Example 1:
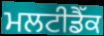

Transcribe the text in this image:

ਮਲਟੀਡੈੱਕ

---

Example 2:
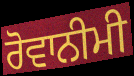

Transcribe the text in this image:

ਰੋਵਾਨੀਮੀ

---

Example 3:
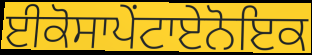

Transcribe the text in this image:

ਈਕੋਸਾਪੇਂਟਾਏਨੋਇਕ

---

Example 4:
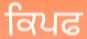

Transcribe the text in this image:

ਕਿਪਫ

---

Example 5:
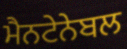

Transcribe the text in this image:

ਮੈਨਟੇਨੇਬਲ